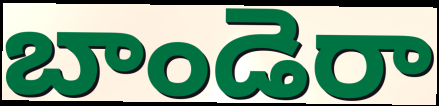
బాండెరా